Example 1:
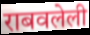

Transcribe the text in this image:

राबवलेली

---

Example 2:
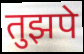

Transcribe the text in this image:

तुझपे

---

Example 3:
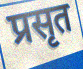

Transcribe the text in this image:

प्रसृत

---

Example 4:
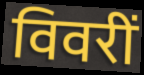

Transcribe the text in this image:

विवरीं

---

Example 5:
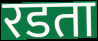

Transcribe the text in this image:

रडता